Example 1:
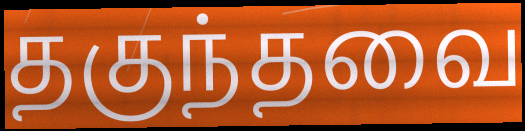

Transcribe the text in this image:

தகுந்தவை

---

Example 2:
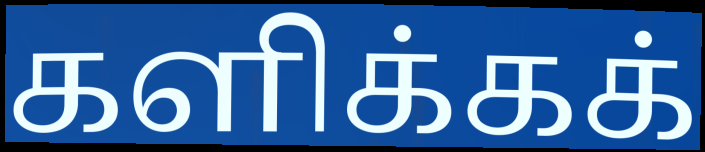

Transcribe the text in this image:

களிக்கக்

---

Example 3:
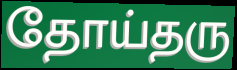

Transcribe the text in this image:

தோய்தரு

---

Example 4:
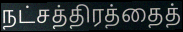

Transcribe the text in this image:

நட்சத்திரத்தைத்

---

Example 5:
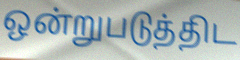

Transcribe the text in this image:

ஒன்றுபடுத்திட